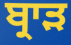
ਬ੍ਰਾੜ